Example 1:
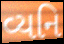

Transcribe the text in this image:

વ્યનિ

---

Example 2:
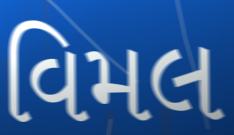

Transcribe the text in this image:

વિમલ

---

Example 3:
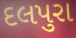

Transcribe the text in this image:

દલપુરા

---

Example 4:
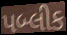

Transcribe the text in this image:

પબ્લીક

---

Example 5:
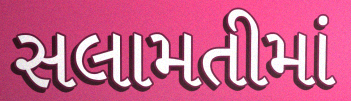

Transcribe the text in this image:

સલામતીમાં